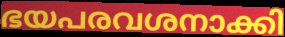
ഭയപരവശനാക്കി